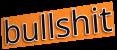
bullshit